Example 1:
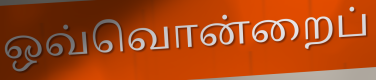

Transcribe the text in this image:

ஒவ்வொன்றைப்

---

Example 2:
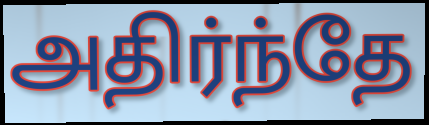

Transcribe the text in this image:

அதிர்ந்தே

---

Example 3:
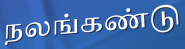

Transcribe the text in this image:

நலங்கண்டு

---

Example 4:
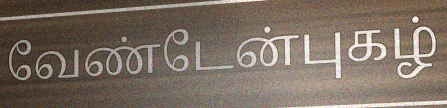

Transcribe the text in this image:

வேண்டேன்புகழ்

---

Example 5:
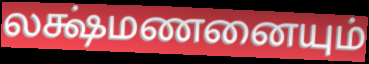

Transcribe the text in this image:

லக்ஷ்மணனையும்